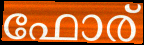
ഫോര്